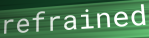
refrained